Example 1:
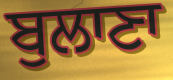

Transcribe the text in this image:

ਬੁਲਾਣਾ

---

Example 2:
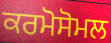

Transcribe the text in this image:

ਕਰਮੋਸੋਮਲ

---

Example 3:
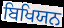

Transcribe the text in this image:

ਬਿਖਿਯਨ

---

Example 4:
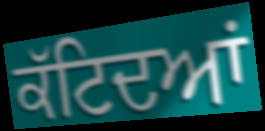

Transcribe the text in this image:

ਕੱਟਿਦਆਂ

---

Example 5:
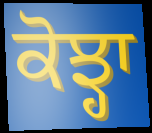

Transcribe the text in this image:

ਕੋਝ੍ਹਾ